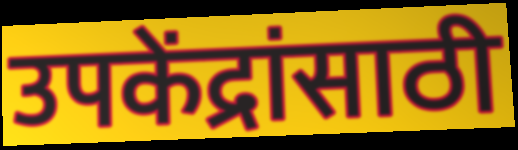
उपकेंद्रांसाठी